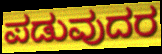
ಪಡುವುದರ